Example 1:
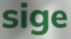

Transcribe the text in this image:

sige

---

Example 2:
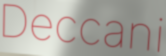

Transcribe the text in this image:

Deccani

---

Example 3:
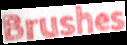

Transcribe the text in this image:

Brushes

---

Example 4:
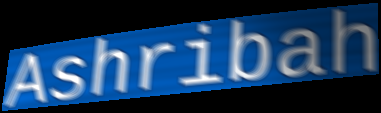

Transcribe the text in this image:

Ashribah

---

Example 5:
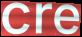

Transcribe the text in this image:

cre